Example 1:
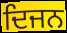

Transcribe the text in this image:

ਦਿਜਨ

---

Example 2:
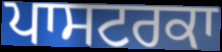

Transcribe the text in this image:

ਪਾਸਟਰਕਾ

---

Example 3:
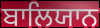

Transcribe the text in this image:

ਬਾਲਿਯਾਨ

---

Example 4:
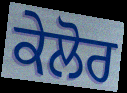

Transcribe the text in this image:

ਕੇਲੋਰ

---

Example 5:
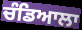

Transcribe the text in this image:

ਚੰਡਿਆਲਾ